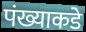
पंख्याकडे